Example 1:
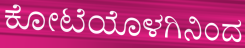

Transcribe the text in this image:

ಕೋಟೆಯೊಳಗಿನಿಂದ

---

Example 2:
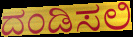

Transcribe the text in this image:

ದಂಡಿಸಲಿ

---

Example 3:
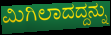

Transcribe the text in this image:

ಮಿಗಿಲಾದದ್ದನ್ನು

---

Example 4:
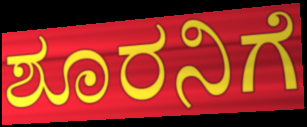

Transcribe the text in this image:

ಶೂರನಿಗೆ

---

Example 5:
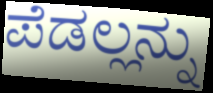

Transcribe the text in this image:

ಪೆಡಲ್ಲನ್ನು